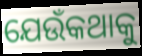
ଯେଉଁକଥାକୁ